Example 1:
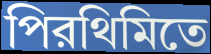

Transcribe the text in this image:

পিরথিমিতে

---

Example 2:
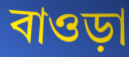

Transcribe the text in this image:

বাওড়া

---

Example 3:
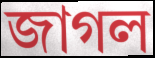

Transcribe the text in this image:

জাগল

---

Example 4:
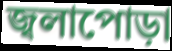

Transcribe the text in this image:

জ্বলাপোড়া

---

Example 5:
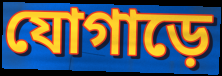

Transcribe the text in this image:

যোগাড়ে